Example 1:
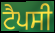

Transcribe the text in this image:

ਟੈਪਸੀ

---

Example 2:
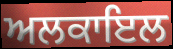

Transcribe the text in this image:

ਅਲਕਾਇਲ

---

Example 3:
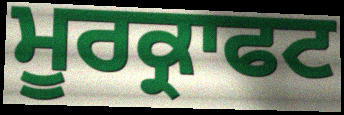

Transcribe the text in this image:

ਮੂਰਕ੍ਰਾਫਟ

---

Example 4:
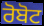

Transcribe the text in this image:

ਰੋਬੋਟ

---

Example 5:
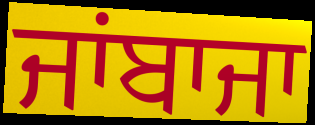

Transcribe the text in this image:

ਜਾਂਬਾਜਾ